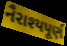
નૈરાશ્યપૂર્ણ